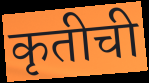
कृतीची